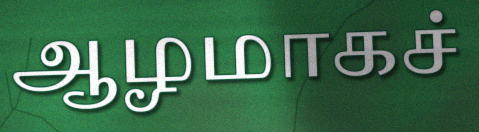
ஆழமாகச்